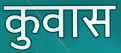
कुवास